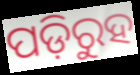
ପଡ଼ିରୁହ